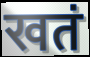
खतं